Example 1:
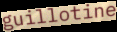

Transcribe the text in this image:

guillotine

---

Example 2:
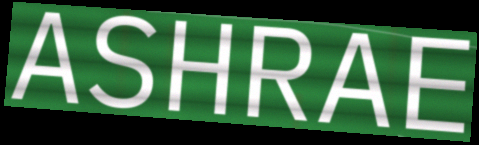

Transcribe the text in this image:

ASHRAE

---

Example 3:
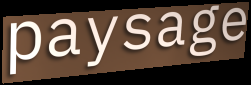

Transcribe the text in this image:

paysage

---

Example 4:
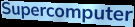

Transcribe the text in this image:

Supercomputer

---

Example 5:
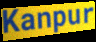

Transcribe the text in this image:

Kanpur